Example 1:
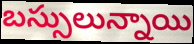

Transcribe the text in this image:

బస్సులున్నాయి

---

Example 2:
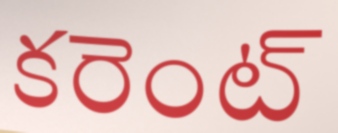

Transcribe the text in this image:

కరెంట్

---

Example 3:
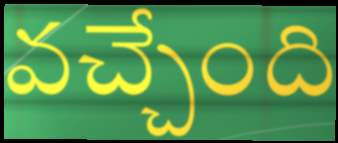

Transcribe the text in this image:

వచ్చేంది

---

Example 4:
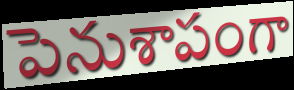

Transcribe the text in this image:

పెనుశాపంగా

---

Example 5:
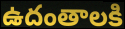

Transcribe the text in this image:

ఉదంతాలకి